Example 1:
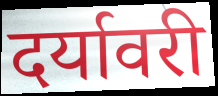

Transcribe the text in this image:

दर्यावरी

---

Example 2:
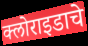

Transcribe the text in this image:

क्लोराइडाचे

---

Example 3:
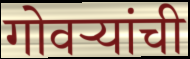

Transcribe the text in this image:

गोवऱ्यांची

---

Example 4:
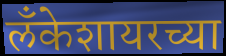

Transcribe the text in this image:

लँकेशायरच्या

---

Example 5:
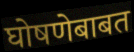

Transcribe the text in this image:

घोषणेबाबत